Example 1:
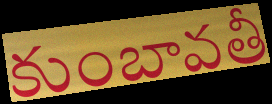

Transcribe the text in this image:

కుంబావతీ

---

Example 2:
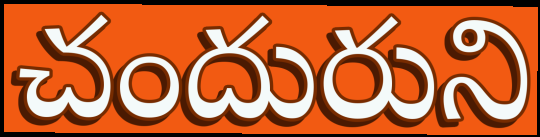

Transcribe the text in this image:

చందురుని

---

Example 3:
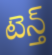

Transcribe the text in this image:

టెన్త్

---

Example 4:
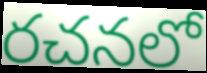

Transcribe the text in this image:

రచనలో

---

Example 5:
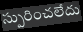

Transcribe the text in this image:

స్పురించలేదు